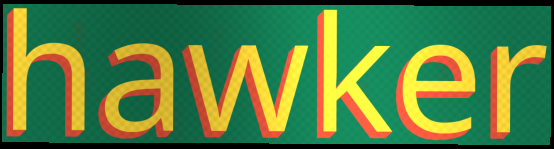
hawker